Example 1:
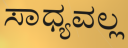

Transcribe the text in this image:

ಸಾಧ್ಯವಲ್ಲ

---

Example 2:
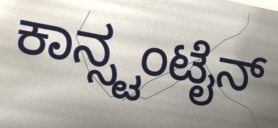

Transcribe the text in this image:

ಕಾನ್ಸ್ಟಂಟೈನ್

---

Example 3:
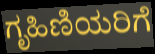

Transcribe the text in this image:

ಗೃಹಿಣಿಯರಿಗೆ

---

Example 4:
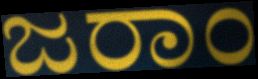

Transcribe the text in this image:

ಜರಾಂ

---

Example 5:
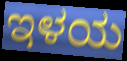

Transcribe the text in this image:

ಇಳಯ